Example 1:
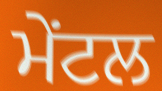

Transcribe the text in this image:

ਮੇਂਟਲ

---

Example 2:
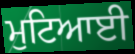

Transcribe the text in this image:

ਮੁਟਿਆਈ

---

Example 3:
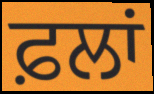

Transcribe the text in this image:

ਫ਼ਲਾਂ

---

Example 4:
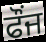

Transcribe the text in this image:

ਫੌਂਜ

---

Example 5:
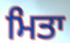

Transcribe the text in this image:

ਮਿਤਾ